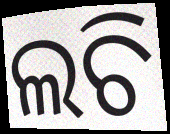
ଲଚି